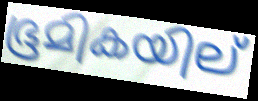
ഭൂമികയില്